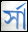
র্সা